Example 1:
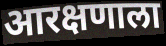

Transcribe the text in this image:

आरक्षणाला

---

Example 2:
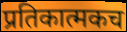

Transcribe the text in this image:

प्रतिकात्मकच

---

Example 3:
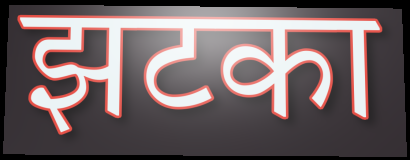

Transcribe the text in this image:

झटका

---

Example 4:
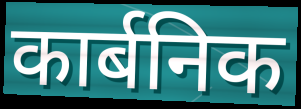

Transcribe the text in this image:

कार्बनिक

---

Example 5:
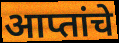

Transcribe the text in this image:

आप्तांचे